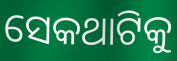
ସେକଥାଟିକୁ